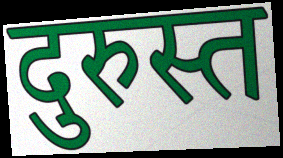
दुरुस्त